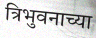
त्रिभुवनाच्या